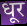
धूर